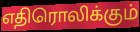
எதிரொலிக்கும்